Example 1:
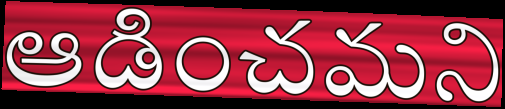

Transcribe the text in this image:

ఆడించమని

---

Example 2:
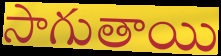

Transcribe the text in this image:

సాగుతాయి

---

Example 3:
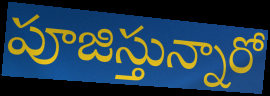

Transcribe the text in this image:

పూజిస్తున్నారో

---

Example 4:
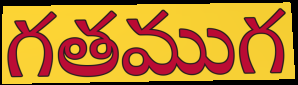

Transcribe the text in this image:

గతముగ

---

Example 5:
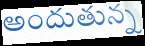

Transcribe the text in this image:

అందుతున్న